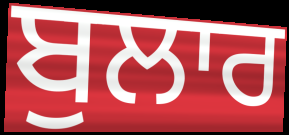
ਬੁਲਾਰ